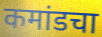
कमांडचा